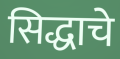
सिद्धाचे